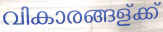
വികാരങ്ങള്ക്ക്